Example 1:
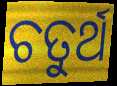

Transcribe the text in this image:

ଚତୁର୍ଥ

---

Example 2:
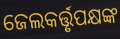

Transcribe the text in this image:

ଜେଲକର୍ତ୍ତୃପକ୍ଷଙ୍କ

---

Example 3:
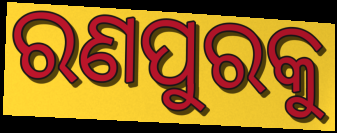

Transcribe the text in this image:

ରଣପୁରକୁ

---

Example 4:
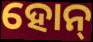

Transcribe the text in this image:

ହୋନ୍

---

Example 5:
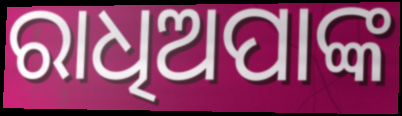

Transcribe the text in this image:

ରାଧିଅପାଙ୍କ